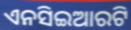
ଏନସିଇଆରଟି